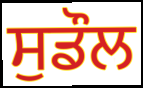
ਸੁਡੌਲ